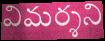
విమర్శని